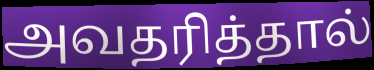
அவதரித்தால்